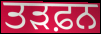
ਤੜਫ਼ਨ